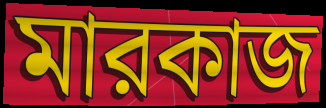
মারকাজ